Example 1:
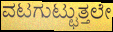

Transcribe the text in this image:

ವಟಗುಟ್ಟುತ್ತಲೇ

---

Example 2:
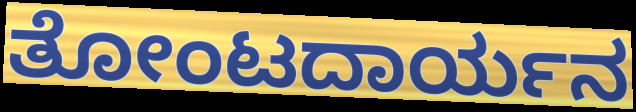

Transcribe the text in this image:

ತೋಂಟದಾರ್ಯನ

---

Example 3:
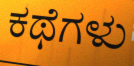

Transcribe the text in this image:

ಕಥೆಗಳು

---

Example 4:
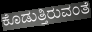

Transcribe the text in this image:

ಕೊಡುತ್ತಿರುವಂತೆ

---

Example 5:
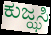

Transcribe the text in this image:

ಕುಜ್ಝಸಿ